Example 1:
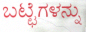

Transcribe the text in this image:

ಬಟ್ಟೆಗಳನ್ನು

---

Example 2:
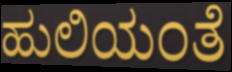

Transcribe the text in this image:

ಹುಲಿಯಂತೆ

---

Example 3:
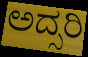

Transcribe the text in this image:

ಅದ್ಸರಿ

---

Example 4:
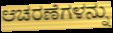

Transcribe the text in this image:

ಆಚರಣೆಗಳನ್ನು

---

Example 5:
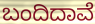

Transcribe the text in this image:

ಬಂದಿದಾವೆ